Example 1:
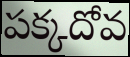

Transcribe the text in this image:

పక్కదోవ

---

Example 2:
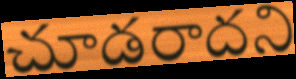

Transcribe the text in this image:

చూడరాదని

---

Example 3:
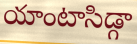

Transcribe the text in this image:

యాంటాసిడ్గా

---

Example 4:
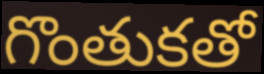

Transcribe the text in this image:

గొంతుకతో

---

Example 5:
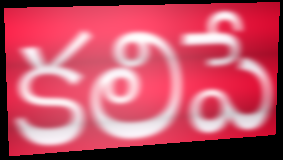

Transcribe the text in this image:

కలిపే